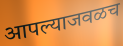
आपल्याजवळच